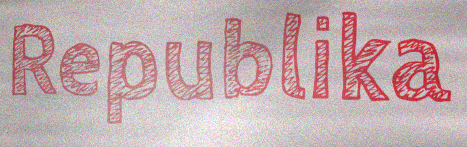
Republika